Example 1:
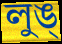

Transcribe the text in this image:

লুঙ্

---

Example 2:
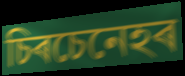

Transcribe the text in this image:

চিৰচেনেহৰ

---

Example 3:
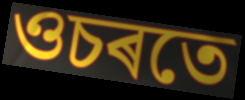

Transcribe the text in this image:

ওচৰতে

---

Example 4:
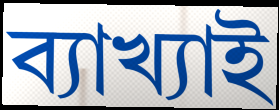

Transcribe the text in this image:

ব্যাখ্যাই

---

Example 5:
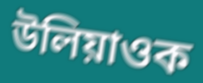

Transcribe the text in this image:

উলিয়াওক